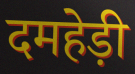
दमहेड़ी